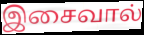
இசைவால்